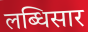
लब्धिसार